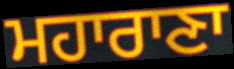
ਮਹਾਰਾਣਾ